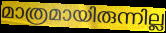
മാത്രമായിരുന്നില്ല